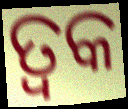
ତ୍ୱକ